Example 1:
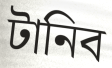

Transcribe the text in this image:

টানিব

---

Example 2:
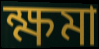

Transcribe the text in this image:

ক্ষমা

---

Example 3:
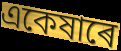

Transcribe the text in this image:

একেষাৰে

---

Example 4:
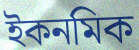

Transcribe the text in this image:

ইকনমিক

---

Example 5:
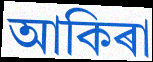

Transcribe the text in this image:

আকিৰা